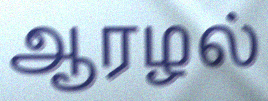
ஆரழல்